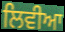
ਲਿਵੀਆ